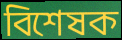
বিশেষক